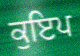
ਕੁਇਪ